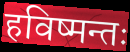
हविष्मन्तः